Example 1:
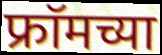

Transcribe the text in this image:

फ्रॉमच्या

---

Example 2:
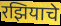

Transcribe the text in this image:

रझियाचे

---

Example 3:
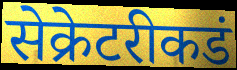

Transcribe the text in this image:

सेक्रेटरीकडं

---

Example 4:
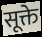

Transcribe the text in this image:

सूक्ते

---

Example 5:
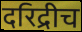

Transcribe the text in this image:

दरिद्रीच